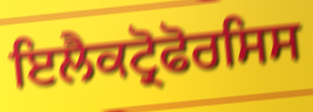
ਇਲੈਕਟ੍ਰੋਫੋਰਸਿਸ